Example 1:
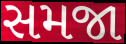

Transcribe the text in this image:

સમજા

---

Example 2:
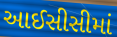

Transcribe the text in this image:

આઈસીસીમાં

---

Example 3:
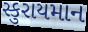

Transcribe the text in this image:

સ્કુરાયમાન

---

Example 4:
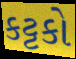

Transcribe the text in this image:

કટ્ટકો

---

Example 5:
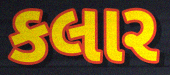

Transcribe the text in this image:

કલાર